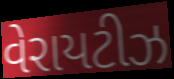
વેરાયટીઝ